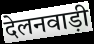
देलनवाड़ी